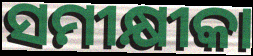
ସମୀକ୍ଷୀକା